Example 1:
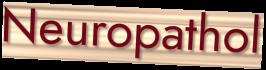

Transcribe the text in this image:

Neuropathol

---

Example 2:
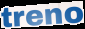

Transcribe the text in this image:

treno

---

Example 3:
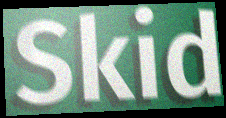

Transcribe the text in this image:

Skid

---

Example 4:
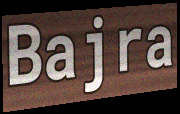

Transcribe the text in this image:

Bajra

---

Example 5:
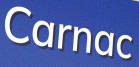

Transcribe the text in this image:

Carnac